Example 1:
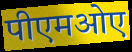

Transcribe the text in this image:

पीएमओए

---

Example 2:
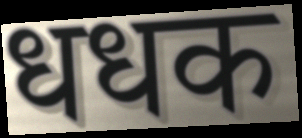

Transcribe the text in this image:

धधक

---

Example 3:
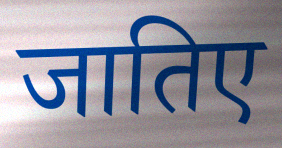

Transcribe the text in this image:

जातिए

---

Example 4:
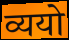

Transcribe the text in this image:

व्ययो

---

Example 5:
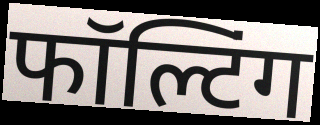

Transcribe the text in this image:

फॉल्टिंग